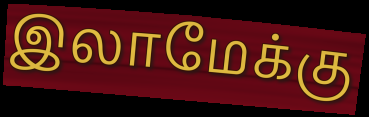
இலாமேக்கு